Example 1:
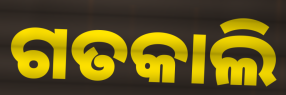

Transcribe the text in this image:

ଗତକାଲି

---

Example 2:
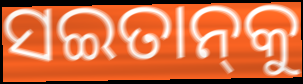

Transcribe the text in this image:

ସଇତାନ୍‌କୁ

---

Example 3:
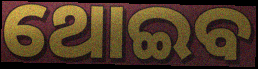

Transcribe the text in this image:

ଥୋଇବ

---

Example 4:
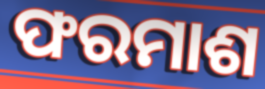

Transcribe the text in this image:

ଫରମାଶ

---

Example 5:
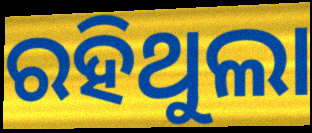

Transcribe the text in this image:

ରହିଥୁଲା